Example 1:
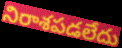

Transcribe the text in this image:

నిరాశపడలేదు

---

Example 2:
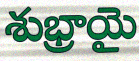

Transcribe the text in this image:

శుభ్రాయై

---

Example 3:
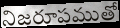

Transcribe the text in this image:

నిజరూపముతో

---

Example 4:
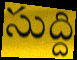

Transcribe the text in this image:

సుద్ది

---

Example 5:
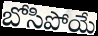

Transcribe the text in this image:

బోసిపోయే